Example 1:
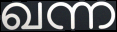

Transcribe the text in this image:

ഖന്ന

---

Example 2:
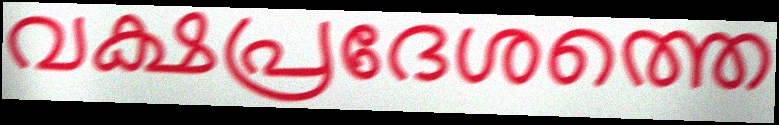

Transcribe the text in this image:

വക്ഷപ്രദേശത്തെ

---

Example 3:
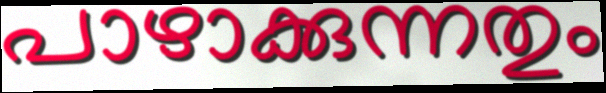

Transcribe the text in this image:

പാഴാക്കുന്നതും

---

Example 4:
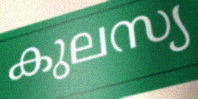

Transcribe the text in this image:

കുലസ്യ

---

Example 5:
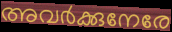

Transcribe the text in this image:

അവർക്കുനേരേ